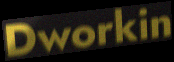
Dworkin